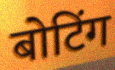
बोटिंग